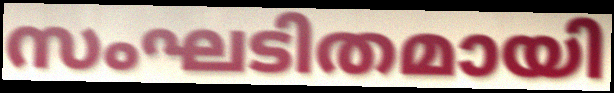
സംഘടിതമായി